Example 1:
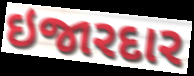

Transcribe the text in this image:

ઇજારદાર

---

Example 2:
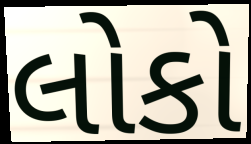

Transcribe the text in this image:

લોકો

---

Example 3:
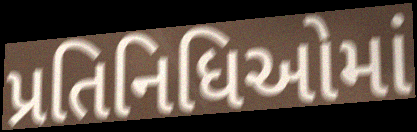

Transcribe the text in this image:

પ્રતિનિધિઓમાં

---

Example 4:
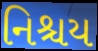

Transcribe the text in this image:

નિશ્ચય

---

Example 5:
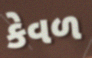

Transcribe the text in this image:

કેવળ